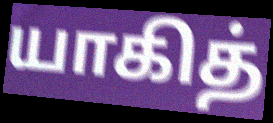
யாகித்